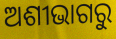
ଅଶୀଭାଗରୁ